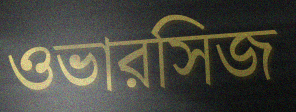
ওভারসিজ